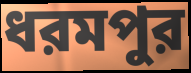
ধরমপুর